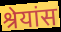
श्रेयांस